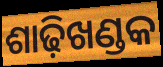
ଶାଢ଼ିଖଣ୍ଡକ